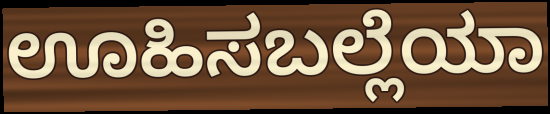
ಊಹಿಸಬಲ್ಲೆಯಾ